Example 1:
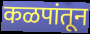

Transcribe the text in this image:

कळपांतून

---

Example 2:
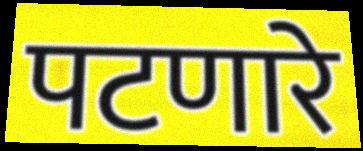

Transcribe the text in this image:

पटणारे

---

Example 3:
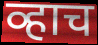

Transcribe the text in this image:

व्हाच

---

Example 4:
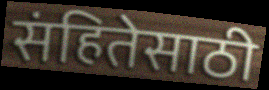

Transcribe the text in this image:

संहितेसाठी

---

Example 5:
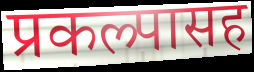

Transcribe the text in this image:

प्रकल्पासह